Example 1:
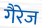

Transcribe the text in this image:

गैरेज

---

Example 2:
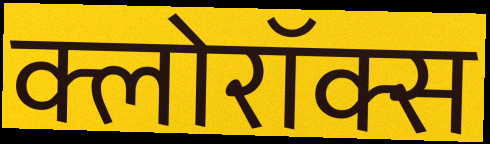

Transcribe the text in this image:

क्लोरॉक्स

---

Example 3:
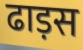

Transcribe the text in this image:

ढाड़स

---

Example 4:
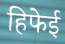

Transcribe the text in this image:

हिफेई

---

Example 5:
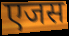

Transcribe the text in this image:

एजस